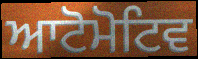
ਆਟੋਮੋਟਿਵ